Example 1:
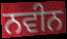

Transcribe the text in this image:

ਨਵੀਨ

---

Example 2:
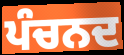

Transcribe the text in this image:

ਪੰਚਨਦ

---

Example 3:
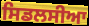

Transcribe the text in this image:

ਸਿਡਲਸੀਆ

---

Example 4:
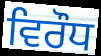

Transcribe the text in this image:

ਵਿਰੌਧ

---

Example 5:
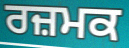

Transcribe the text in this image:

ਰਜ਼ਮਕ